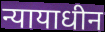
न्यायाधीन